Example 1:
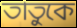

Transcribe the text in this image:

তাতুকে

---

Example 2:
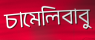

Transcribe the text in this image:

চামেলিবাবু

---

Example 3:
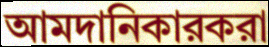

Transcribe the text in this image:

আমদানিকারকরা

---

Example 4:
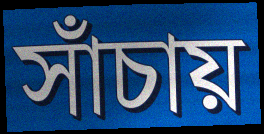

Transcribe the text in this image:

সাঁচায়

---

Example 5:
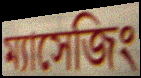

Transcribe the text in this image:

ম্যাসেজিং